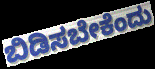
ಬಿಡಿಸಬೇಕೆಂದು